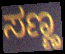
ಸಣ್ಣ